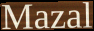
Mazal